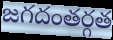
జగదంతర్గత